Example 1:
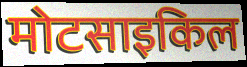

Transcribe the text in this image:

मोटसाइकिल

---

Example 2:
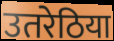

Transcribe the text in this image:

उतरेठिया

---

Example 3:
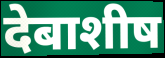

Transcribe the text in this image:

देबाशीष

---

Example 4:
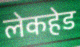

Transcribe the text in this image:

लेकहेड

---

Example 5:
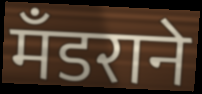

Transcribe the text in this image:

मँडराने